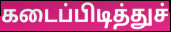
கடைப்பிடித்துச்